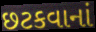
છટકવાનાં